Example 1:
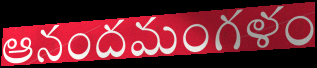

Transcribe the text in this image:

ఆనందమంగళం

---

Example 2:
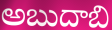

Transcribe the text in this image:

అబుదాబి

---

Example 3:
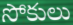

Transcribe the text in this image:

సోకులు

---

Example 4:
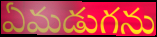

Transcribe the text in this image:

ఏమడుగను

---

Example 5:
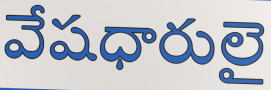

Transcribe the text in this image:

వేషధారులై